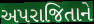
અપરાજિતાને